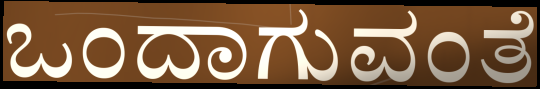
ಒಂದಾಗುವಂತೆ